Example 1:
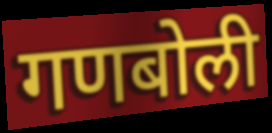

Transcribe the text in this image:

गणबोली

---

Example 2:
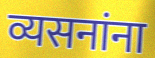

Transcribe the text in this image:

व्यसनांना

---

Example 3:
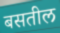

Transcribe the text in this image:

बसतील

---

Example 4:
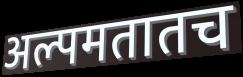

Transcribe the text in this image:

अल्पमतातच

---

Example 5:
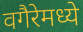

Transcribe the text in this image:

वगैरेमध्ये